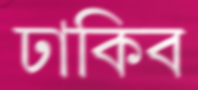
ঢাকিব